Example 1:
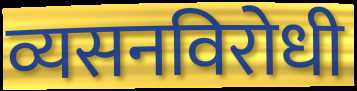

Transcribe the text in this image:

व्यसनविरोधी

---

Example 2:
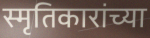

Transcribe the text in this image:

स्मृतिकारांच्या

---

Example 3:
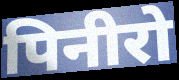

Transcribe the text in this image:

पिनीरो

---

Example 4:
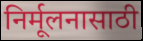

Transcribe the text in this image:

निर्मूलनासाठी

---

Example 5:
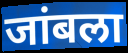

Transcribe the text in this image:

जांबला